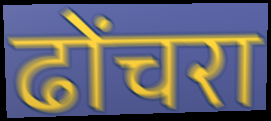
ढोंचरा